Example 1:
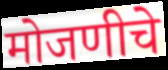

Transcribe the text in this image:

मोजणीचे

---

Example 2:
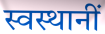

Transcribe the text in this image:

स्वस्थानीं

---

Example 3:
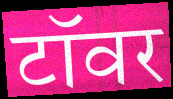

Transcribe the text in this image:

टॉवर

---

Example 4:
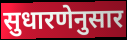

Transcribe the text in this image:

सुधारणेनुसार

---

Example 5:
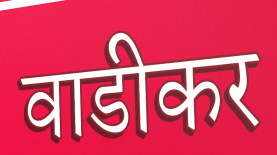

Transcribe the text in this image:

वाडीकर